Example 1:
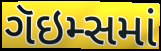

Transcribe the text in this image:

ગૅઇમ્સમાં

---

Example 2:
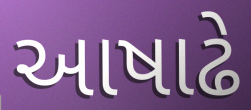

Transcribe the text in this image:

આષાઢે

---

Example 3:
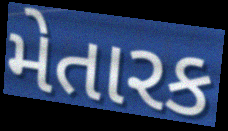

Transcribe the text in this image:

મેતારક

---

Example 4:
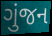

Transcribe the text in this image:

ગુંજન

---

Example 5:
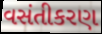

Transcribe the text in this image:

વસંતીકરણ